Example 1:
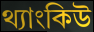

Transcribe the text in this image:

থ্যাংকিউ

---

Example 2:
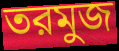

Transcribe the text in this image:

তরমুজ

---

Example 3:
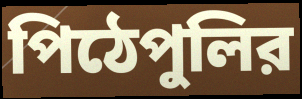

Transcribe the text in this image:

পিঠেপুলির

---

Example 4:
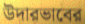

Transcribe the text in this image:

উদারভাবের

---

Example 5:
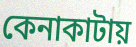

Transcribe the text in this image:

কেনাকাটায়